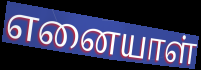
எனையாள்